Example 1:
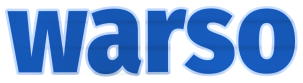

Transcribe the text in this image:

warso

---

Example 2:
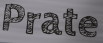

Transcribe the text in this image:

Prate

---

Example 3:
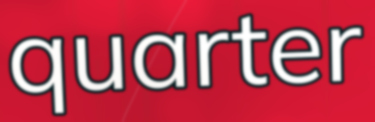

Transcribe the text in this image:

quarter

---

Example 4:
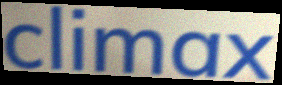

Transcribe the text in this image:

climax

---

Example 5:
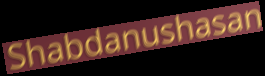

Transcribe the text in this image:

Shabdanushasan